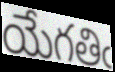
యేగతిఁ